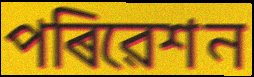
পৰিৱেশন